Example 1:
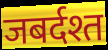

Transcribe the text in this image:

जबर्दश्त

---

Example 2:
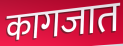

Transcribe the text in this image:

कागजात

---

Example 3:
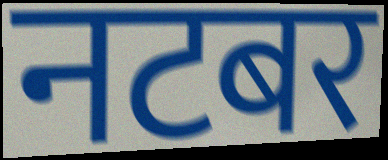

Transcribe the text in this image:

नटबर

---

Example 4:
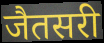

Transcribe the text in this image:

जैतसरी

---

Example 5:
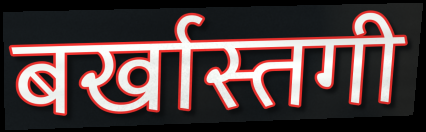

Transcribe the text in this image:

बर्खास्तगी